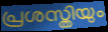
പ്രശസ്തിയും